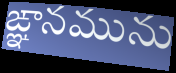
ఙ్ఞానమును